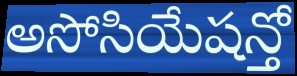
అసోసియేషన్తో